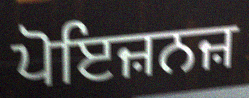
ਪੋਇਜ਼ਨਜ਼